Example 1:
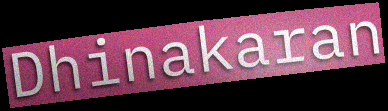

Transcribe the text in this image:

Dhinakaran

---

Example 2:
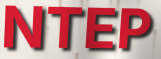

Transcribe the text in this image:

NTEP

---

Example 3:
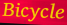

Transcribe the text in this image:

Bicycle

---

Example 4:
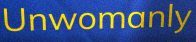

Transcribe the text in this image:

Unwomanly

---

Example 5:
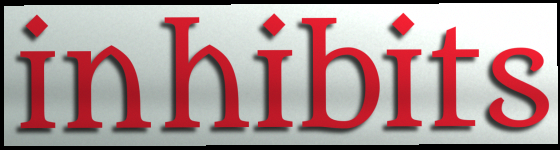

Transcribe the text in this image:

inhibits